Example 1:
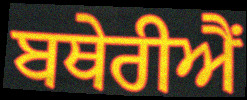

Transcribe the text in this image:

ਬਥੇਰੀਐਂ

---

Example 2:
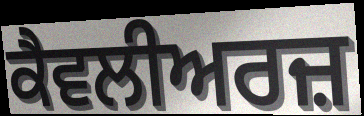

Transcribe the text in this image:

ਕੈਵਲੀਅਰਜ਼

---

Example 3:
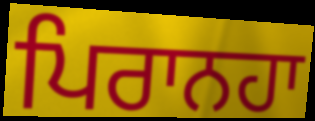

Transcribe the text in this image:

ਪਿਰਾਨਹਾ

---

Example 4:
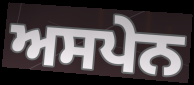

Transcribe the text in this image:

ਅਸਪੇਨ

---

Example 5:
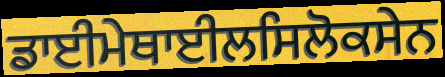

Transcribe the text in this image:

ਡਾਈਮੇਥਾਈਲਸਿਲੋਕਸੇਨ